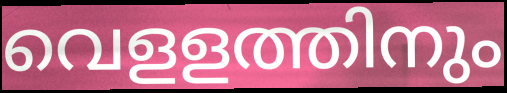
വെളളത്തിനും